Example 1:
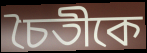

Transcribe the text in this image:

চৈতীকে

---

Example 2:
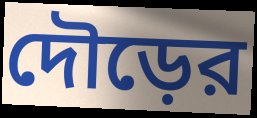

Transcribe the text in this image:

দৌড়ের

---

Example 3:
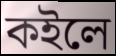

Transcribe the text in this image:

কইলে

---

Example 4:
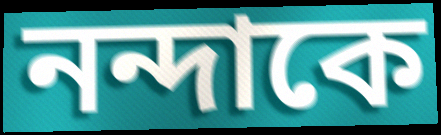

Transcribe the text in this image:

নন্দাকে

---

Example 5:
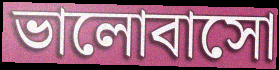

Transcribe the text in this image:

ভালোবাসো